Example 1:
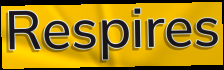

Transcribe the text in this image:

Respires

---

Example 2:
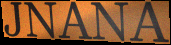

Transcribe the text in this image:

JNANA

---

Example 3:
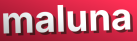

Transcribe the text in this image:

maluna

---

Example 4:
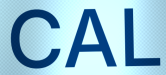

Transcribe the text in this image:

CAL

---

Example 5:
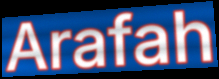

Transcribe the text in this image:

Arafah